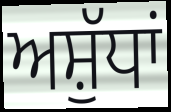
ਅਸ਼ੁੱਧਾਂ